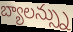
బ్యాలన్స్ను